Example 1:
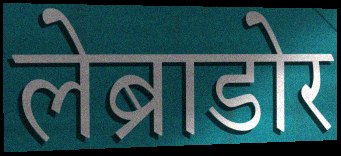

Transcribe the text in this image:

लेब्राडोर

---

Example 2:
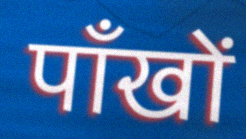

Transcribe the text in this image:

पाँखों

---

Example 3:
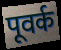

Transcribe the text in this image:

पूवर्क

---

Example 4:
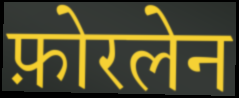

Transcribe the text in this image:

फ़ोरलेन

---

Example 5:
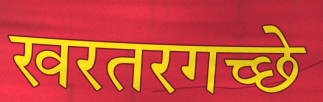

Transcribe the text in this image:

खरतरगच्छे